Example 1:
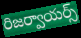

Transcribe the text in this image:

రిజర్వాయర్స్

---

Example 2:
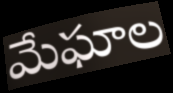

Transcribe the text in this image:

మేఘాల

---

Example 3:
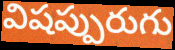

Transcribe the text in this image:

విషప్పురుగు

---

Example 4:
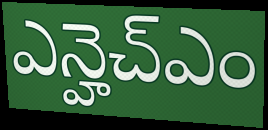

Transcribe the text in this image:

ఎన్హెచ్ఎం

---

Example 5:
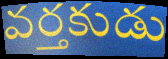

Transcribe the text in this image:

వర్తకుడు